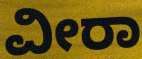
ವೀರಾ